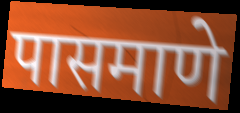
पासमाणे